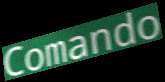
Comando